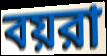
বয়রা